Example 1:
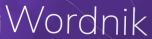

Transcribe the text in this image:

Wordnik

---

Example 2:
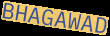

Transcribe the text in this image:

BHAGAWAD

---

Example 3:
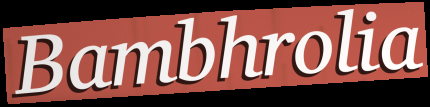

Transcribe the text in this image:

Bambhrolia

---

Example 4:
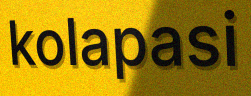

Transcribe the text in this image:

kolapasi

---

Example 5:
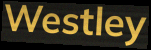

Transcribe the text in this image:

Westley